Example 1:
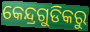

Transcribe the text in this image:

କେନ୍ଦ୍ରଗୁଡିକରୁ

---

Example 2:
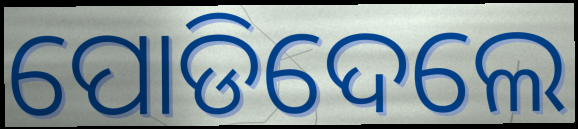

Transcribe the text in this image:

ପୋଡିଦେଲେ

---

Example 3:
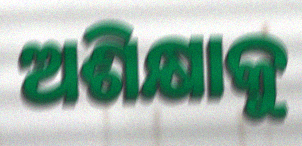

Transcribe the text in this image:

ଅଶିକ୍ଷାକୁ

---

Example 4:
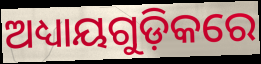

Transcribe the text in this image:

ଅଧ୍ୟାୟଗୁଡ଼ିକରେ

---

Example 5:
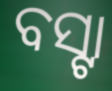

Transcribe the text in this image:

ବସ୍ଟା